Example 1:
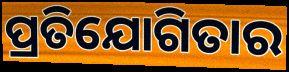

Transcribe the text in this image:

ପ୍ରତିଯୋଗିତାର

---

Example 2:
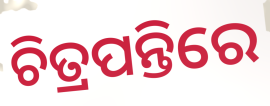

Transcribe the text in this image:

ଚିତ୍ରପନ୍ତିରେ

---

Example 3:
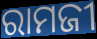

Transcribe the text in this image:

ରାମଜୀ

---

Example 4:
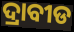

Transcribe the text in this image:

ଦ୍ରାବୀଡ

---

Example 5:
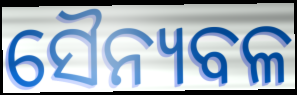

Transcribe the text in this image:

ସୈନ୍ୟବଳ